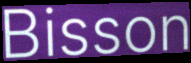
Bisson